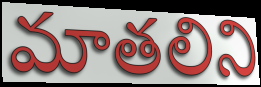
మాతలిని